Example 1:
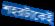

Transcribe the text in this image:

শহরটাকেই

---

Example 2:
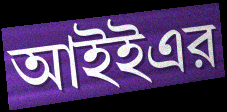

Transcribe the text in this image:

আইইএর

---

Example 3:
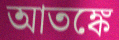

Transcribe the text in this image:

আতঙ্কে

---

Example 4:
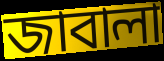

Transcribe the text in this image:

জাবালা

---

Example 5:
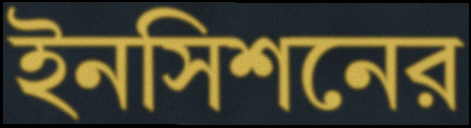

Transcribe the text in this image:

ইনসিশনের